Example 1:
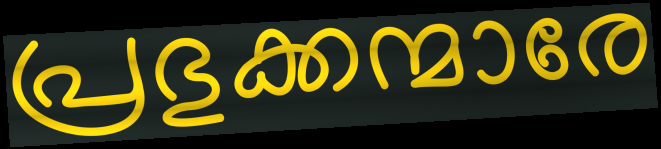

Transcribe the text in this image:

പ്രഭുക്കന്മാരേ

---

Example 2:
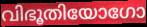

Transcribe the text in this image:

വിഭൂതിയോഗോ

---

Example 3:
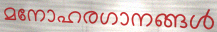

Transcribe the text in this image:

മനോഹരഗാനങ്ങൾ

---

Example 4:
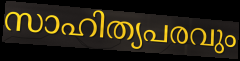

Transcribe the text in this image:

സാഹിത്യപരവും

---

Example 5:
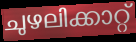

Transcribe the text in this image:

ചുഴലിക്കാറ്റ്